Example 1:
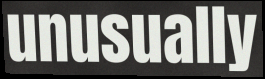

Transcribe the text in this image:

unusually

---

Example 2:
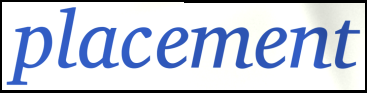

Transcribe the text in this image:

placement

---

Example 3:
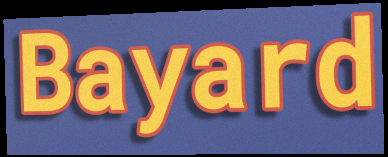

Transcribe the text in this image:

Bayard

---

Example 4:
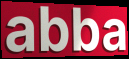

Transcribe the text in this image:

abba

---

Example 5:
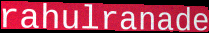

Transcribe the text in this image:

rahulranade